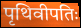
पृथिवीपतिः